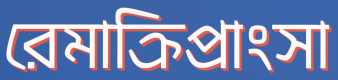
রেমাক্রিপ্রাংসা